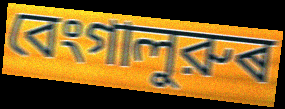
বেংগালুৰুৰ